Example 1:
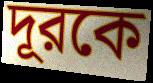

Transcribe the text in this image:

দূরকে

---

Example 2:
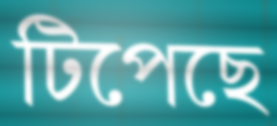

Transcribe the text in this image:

টিপেছে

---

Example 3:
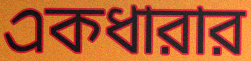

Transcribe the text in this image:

একধারার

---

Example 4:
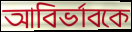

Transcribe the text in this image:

আবির্ভাবকে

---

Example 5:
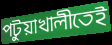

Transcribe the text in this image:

পটুয়াখালীতেই